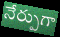
నేర్పుగా